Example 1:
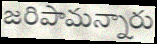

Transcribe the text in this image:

జరిపామన్నారు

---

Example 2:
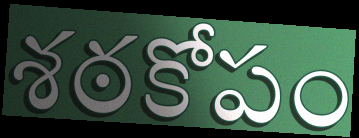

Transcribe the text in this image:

శఠకోపం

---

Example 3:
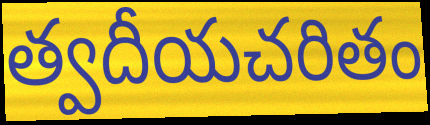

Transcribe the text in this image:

త్వదీయచరితం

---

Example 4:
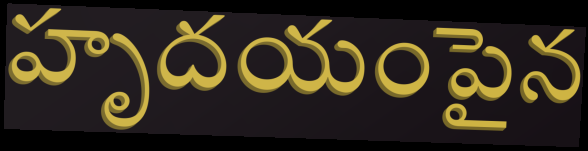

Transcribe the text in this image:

హృదయంపైన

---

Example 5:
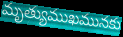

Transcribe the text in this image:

మృత్యుముఖమునకు